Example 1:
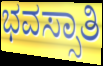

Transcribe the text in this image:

ಭವಸ್ಸಾತಿ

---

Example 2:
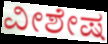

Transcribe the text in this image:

ವೀಶೇಷ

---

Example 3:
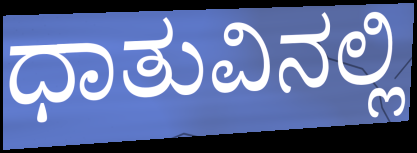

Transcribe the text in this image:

ಧಾತುವಿನಲ್ಲಿ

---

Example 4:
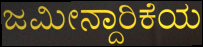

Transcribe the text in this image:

ಜಮೀನ್ದಾರಿಕೆಯ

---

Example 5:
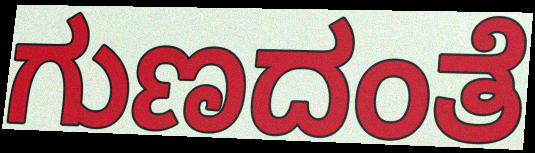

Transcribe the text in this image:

ಗುಣದಂತೆ